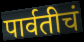
पार्वतीचं